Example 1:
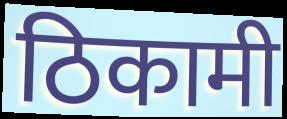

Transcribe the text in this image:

ठिकामी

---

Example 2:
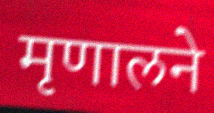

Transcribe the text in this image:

मृणालने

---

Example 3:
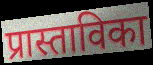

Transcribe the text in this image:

प्रास्ताविका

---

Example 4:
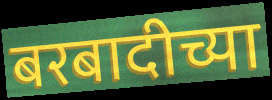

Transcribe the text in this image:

बरबादीच्या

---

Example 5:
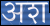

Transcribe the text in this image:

अश